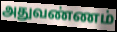
அதுவண்ணம்